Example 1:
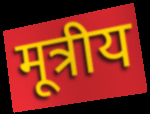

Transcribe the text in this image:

मूत्रीय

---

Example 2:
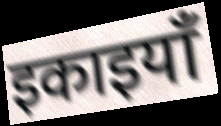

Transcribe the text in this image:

इकाइयाँ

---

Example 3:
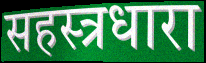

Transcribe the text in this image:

सहस्त्रधारा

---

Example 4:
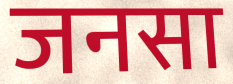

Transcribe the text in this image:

जनसा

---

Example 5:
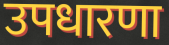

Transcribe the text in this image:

उपधारणा